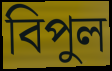
বিপুল